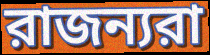
রাজন্যরা